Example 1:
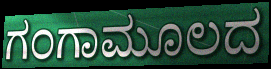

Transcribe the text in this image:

ಗಂಗಾಮೂಲದ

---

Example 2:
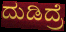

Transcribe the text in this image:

ದುಡಿದ್ರೆ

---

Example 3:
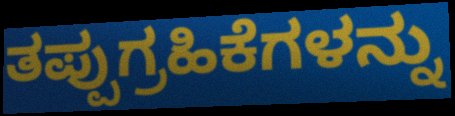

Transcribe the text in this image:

ತಪ್ಪುಗ್ರಹಿಕೆಗಳನ್ನು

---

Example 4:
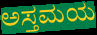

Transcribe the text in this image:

ಅಸ್ತಮಯ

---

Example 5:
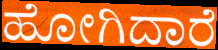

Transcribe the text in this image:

ಹೋಗಿದಾರೆ